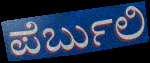
ಪೆರ್ಬುಲಿ